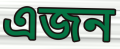
এজন